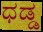
ಧಡ್ಡ